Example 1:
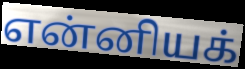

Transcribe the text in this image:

என்னியக்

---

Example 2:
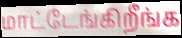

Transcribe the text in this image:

மாட்டேங்கிறீங்க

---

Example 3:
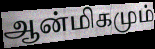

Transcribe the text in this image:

ஆன்மிகமும்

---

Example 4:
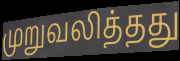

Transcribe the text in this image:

முறுவலித்தது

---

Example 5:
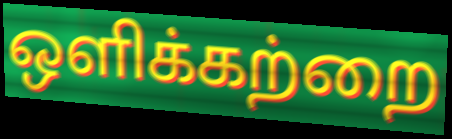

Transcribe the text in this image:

ஒளிக்கற்றை